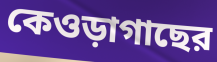
কেওড়াগাছের